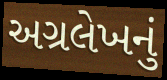
અગ્રલેખનું